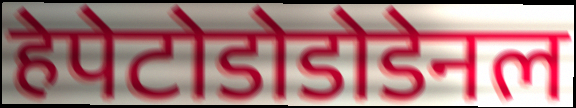
हेपेटोडोडोडेनल